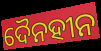
ଦୈନହୀନ